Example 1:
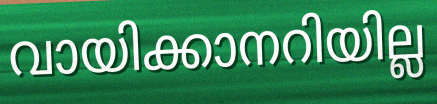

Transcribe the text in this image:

വായിക്കാനറിയില്ല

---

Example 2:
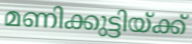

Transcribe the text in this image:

മണിക്കുട്ടിയ്ക്ക്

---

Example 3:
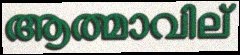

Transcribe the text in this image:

ആത്മാവില്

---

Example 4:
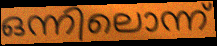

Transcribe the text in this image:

ഒന്നിലൊന്ന്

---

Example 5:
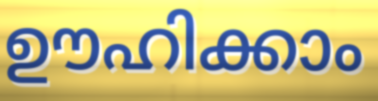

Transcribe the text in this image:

ഊഹിക്കാം